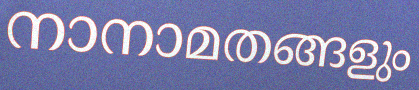
നാനാമതങ്ങളും